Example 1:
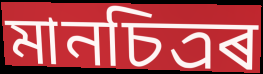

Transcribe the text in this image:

মানচিত্ৰৰ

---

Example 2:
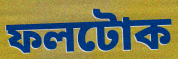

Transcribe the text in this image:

ফলটোক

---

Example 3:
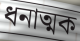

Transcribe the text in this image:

ধনাত্মক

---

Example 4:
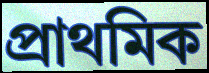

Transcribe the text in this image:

প্ৰাথমিক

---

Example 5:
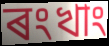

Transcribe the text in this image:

ৰংখাং